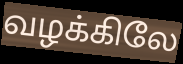
வழக்கிலே